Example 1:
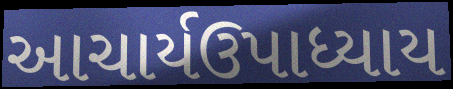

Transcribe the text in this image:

આચાર્યઉપાધ્યાય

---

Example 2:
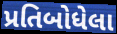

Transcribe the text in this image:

પ્રતિબોધેલા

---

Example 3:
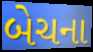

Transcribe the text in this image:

બેચના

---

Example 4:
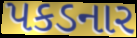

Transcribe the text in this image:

પકડનાર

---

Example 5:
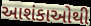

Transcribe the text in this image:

આશંકાઓથી